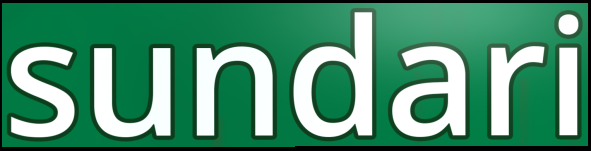
sundari